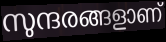
സുന്ദരങ്ങളാണ്